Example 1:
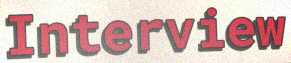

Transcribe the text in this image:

Interview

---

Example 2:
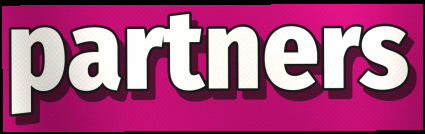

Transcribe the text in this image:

partners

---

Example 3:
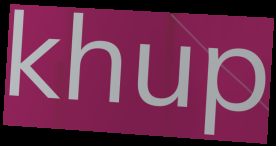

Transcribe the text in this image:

khup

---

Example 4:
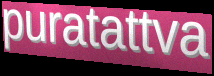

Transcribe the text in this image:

puratattva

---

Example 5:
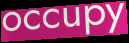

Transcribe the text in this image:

occupy